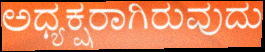
ಅಧ್ಯಕ್ಷರಾಗಿರುವುದು